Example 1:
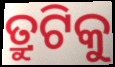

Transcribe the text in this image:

ତ୍ରୁଟିକୁ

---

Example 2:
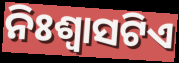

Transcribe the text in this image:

ନିଃଶ୍ୱାସଟିଏ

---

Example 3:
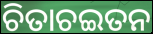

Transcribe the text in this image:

ଚିତାଚଇତନ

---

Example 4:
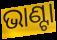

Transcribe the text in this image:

ଭାଣ୍ଟା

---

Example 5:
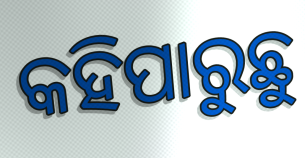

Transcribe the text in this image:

କହିପାରୁଛୁ